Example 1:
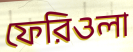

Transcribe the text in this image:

ফেরিওলা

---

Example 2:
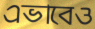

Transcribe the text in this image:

এভাবেও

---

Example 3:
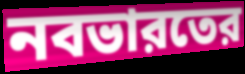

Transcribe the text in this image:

নবভারতের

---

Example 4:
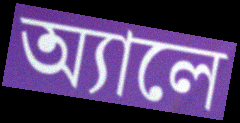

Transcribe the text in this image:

অ্যালে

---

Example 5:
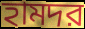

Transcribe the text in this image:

হামদর